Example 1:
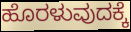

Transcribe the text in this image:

ಹೊರಳುವುದಕ್ಕೆ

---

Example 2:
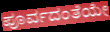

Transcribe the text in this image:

ಪೂರ್ವದಂತೆಯೇ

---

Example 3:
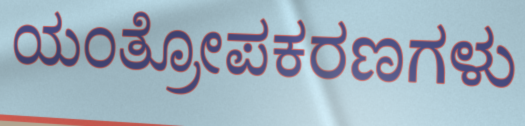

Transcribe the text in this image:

ಯಂತ್ರೋಪಕರಣಗಳು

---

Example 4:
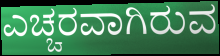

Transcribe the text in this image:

ಎಚ್ಚರವಾಗಿರುವ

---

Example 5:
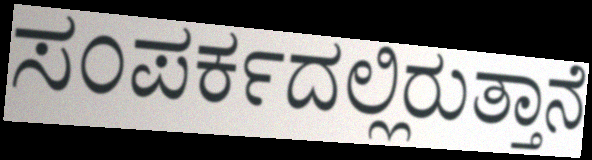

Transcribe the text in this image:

ಸಂಪರ್ಕದಲ್ಲಿರುತ್ತಾನೆ